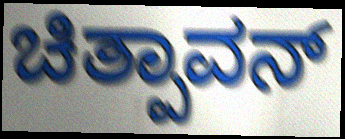
ಚಿತ್ಪಾವನ್